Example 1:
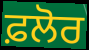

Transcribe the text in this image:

ਫ਼ਲੋਰ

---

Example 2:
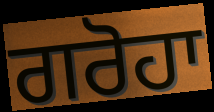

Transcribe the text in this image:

ਗਰੋਹਾ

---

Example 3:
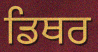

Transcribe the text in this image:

ਡਿਥਰ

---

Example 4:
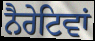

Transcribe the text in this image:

ਨੈਰੇਟਿਵਾਂ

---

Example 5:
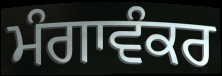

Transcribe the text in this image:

ਮੰਗਾਵੰਕਰ